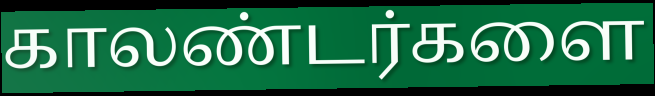
காலண்டர்களை